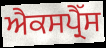
ਐਕਸਪ੍ਰੈੱਸ